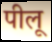
पीलू